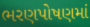
ભરણપોષણમાં